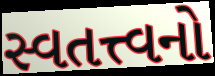
સ્વતત્ત્વનો